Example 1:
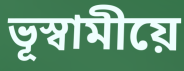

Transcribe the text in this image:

ভূস্বামীয়ে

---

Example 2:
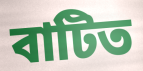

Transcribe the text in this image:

বাটিত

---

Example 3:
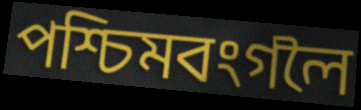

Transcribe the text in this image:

পশ্চিমবংগলৈ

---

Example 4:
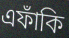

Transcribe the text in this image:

এফাঁকি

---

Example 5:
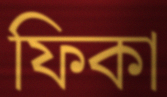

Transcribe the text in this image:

ফিকা